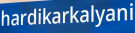
hardikarkalyani